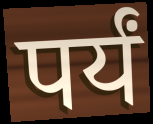
पर्यं